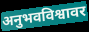
अनुभवविश्वावर